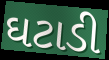
ઘટાડી